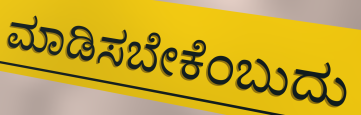
ಮಾಡಿಸಬೇಕೆಂಬುದು